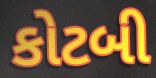
કોટબી